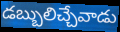
డబ్బులిచ్చేవాడు